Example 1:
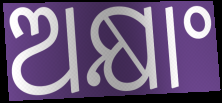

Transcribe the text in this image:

ଅକ୍ଷାଂ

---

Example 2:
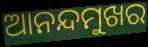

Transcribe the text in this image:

ଆନନ୍ଦମୁଖର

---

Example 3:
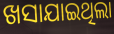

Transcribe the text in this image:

ଖସାଯାଇଥିଲା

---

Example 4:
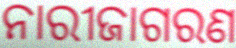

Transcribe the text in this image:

ନାରୀଜାଗରଣ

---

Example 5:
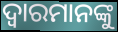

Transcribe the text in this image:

ଦ୍ୱାରମାନଙ୍କୁ